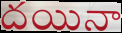
దయినా